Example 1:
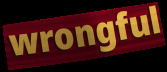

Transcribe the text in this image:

wrongful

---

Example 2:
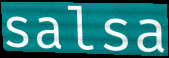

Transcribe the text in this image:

salsa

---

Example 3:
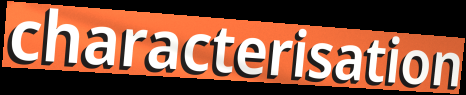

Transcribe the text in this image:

characterisation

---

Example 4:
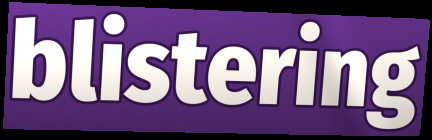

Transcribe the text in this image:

blistering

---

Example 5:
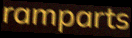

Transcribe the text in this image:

ramparts